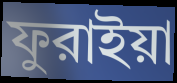
ফুরাইয়া